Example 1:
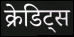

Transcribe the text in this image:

क्रेडिट्स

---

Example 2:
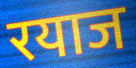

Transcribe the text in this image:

रयाज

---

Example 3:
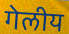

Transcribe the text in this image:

गेलीय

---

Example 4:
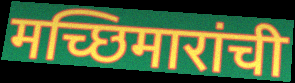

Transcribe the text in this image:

मच्छिमारांची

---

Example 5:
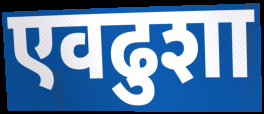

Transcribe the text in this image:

एवढुशा